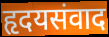
हृदयसंवाद